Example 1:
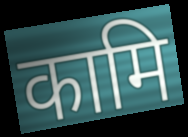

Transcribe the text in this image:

कामि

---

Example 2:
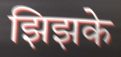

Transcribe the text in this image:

झिझके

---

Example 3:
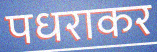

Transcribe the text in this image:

पधराकर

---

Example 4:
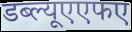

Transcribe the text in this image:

डब्ल्यूएएफए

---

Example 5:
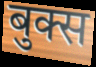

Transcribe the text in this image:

बुक्‍स